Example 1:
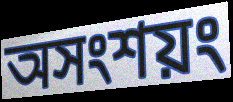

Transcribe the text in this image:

অসংশয়ং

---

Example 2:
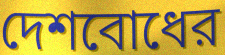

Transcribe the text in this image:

দেশবোধের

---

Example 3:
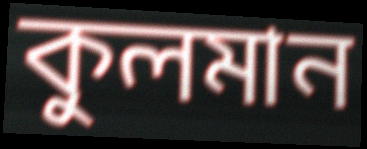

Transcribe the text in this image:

কুলমান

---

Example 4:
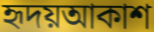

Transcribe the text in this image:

হৃদয়আকাশ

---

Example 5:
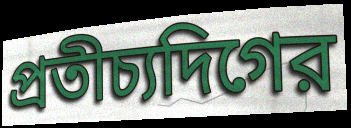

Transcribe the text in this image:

প্রতীচ্যদিগের